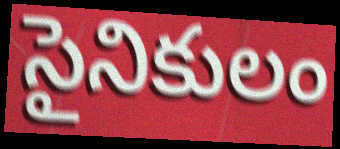
సైనికులం